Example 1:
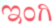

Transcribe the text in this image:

ಇಂಗಿ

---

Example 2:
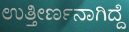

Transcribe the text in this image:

ಉತ್ತೀರ್ಣನಾಗಿದ್ದೆ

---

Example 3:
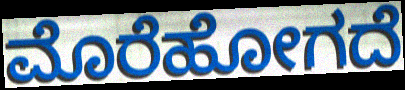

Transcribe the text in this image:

ಮೊರೆಹೋಗದೆ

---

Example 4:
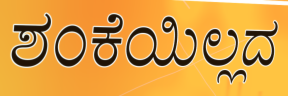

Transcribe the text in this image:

ಶಂಕೆಯಿಲ್ಲದ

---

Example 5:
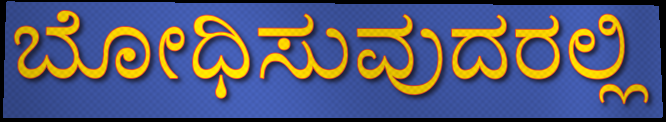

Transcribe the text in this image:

ಬೋಧಿಸುವುದರಲ್ಲಿ